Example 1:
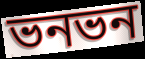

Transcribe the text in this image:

ভনভন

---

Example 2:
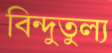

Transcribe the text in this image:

বিন্দুতুল্য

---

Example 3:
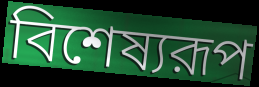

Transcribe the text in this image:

বিশেষ্যরূপ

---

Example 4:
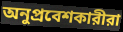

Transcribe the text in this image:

অনুপ্রবেশকারীরা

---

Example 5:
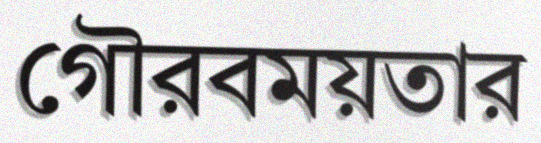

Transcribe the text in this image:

গৌরবময়তার